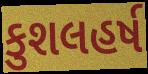
કુશલહર્ષ